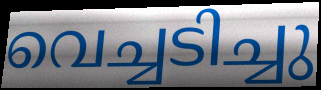
വെച്ചടിച്ചു